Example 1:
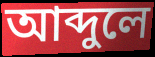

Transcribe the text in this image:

আব্দুলে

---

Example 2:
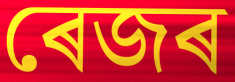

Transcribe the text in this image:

ৰেজৰ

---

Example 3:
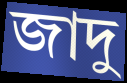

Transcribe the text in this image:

জাদু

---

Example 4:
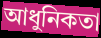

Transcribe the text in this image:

আধুনিকতা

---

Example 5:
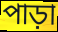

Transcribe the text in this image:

পাড়া